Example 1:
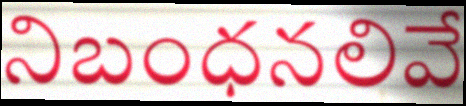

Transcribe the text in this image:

నిబంధనలివే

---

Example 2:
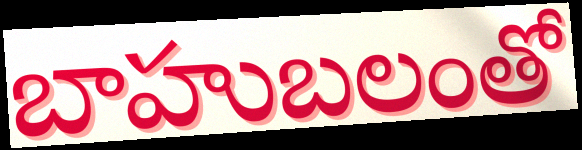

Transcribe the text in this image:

బాహుబలంతో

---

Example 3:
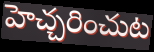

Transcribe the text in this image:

హెచ్చరించుట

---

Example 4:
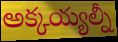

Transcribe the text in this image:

అక్కయ్యల్నీ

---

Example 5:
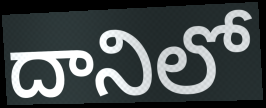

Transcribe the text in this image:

దానిలో